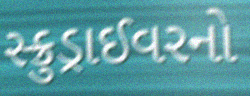
સ્ક્રુડ્રાઈવરનો